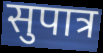
सुपात्र